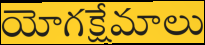
యోగక్షేమాలు